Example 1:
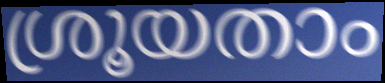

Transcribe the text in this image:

ശ്രൂയതാം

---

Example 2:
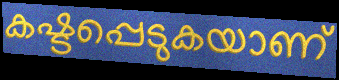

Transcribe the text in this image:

കഷ്ടപ്പെടുകയാണ്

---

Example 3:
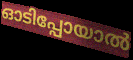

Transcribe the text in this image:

ഓടിപ്പോയാൽ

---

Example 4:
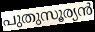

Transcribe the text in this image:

പുതുസൂര്യൻ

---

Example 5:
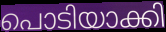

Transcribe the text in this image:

പൊടിയാക്കി